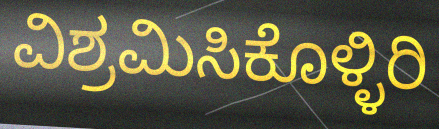
ವಿಶ್ರಮಿಸಿಕೊಳ್ಳಿರಿ